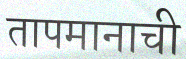
तापमानाची